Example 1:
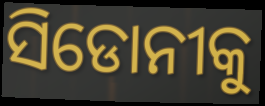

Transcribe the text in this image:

ସିଡୋନୀକୁ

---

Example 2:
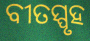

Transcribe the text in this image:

ବୀତସ୍ପୃହ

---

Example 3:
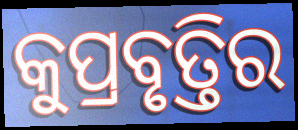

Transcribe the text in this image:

କୁପ୍ରବୃତ୍ତିର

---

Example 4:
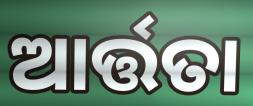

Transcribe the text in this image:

ଆର୍ତ୍ତତା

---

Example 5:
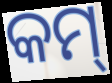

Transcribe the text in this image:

କମ୍